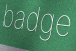
badge